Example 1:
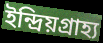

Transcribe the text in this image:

ইন্দ্রিয়গ্রাহ্য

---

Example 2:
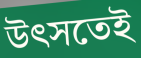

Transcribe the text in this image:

উৎসতেই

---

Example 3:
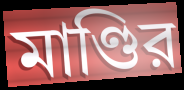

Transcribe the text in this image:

মাণ্ডির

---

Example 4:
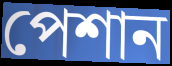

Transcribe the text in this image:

পেশান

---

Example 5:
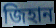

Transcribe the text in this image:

জিহান